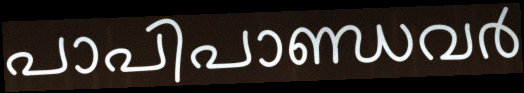
പാപിപാണ്ഡവർ